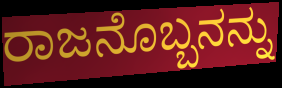
ರಾಜನೊಬ್ಬನನ್ನು